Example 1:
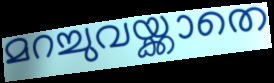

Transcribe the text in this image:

മറച്ചുവയ്ക്കാതെ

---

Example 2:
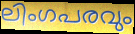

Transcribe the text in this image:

ലിംഗപരവും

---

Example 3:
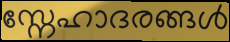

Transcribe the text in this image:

സ്നേഹാദരങ്ങൾ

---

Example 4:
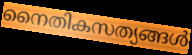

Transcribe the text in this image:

നൈതികസത്യങ്ങൾ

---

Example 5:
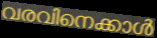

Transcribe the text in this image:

വരവിനെക്കാൾ